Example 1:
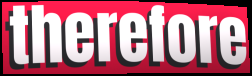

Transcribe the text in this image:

therefore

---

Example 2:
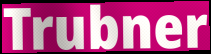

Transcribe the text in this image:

Trubner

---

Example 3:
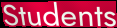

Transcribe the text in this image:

Students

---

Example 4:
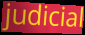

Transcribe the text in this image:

judicial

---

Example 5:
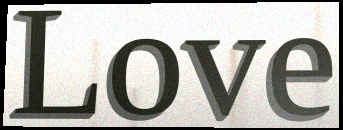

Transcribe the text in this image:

Love